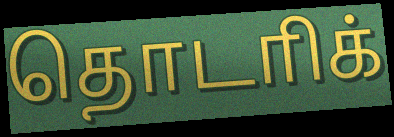
தொடரிக்